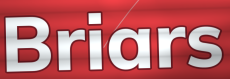
Briars